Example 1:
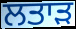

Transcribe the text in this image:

ਲਤਾੜ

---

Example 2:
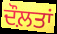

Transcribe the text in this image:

ਦੌਲ਼ਤਾਂ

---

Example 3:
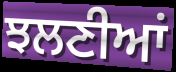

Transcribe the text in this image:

ਝਲਣੀਆਂ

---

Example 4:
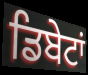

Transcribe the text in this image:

ਡਿਬੇਟਾਂ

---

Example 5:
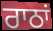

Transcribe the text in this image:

ਰਾਠਾਂ